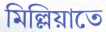
মিল্লিয়াতে